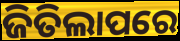
ଜିତିଲାପରେ